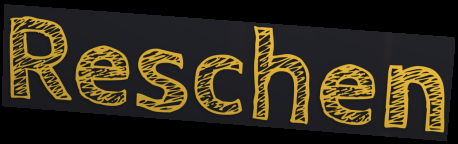
Reschen